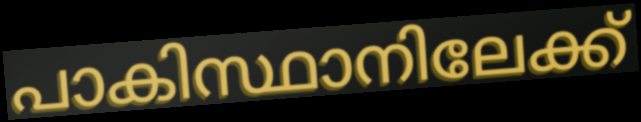
പാകിസ്ഥാനിലേക്ക്